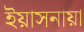
ইয়াসনায়া